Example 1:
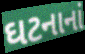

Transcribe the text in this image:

ઘટનાનાં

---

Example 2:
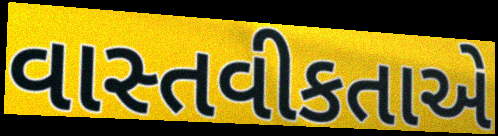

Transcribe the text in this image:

વાસ્તવીકતાએ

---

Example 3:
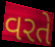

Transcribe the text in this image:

વરતે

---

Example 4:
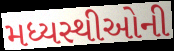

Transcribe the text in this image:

મધ્યસ્થીઓની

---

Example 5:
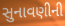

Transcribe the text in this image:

સુનાવણીની